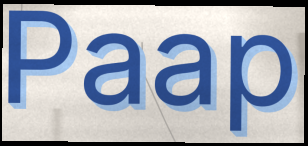
Paap